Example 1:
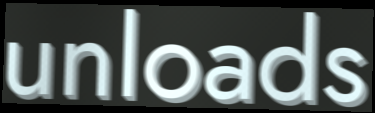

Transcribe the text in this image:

unloads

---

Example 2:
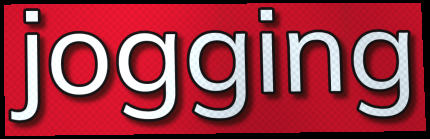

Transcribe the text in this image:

jogging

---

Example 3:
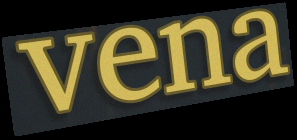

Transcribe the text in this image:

vena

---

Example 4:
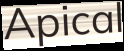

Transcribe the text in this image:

Apical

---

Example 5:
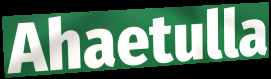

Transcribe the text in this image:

Ahaetulla